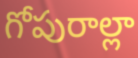
గోపురాల్లా